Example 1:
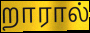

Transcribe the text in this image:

றாரால்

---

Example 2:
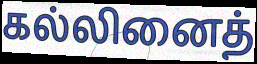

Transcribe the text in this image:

கல்லினைத்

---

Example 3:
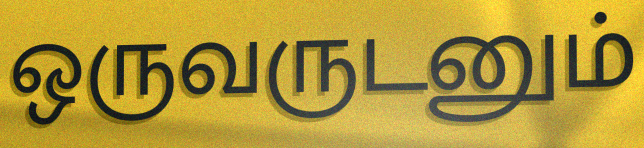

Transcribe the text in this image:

ஒருவருடனும்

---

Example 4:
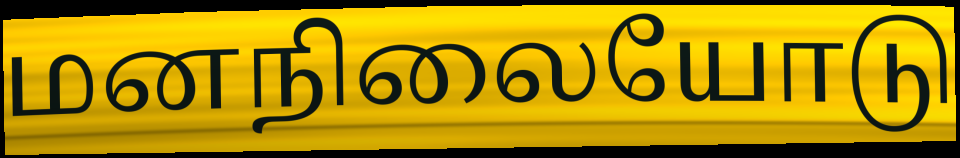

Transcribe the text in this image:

மனநிலையோடு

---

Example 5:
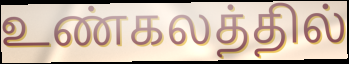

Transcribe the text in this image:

உண்கலத்தில்